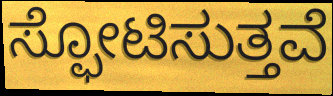
ಸ್ಫೋಟಿಸುತ್ತವೆ